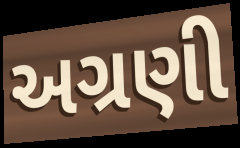
અગ્રણી